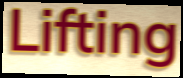
Lifting